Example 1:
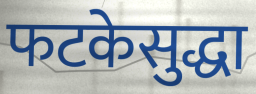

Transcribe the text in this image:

फटकेसुद्धा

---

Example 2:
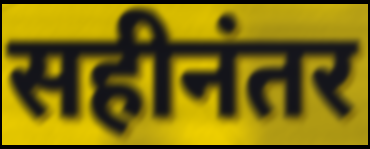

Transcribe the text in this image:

सहीनंतर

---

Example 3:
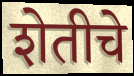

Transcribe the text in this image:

शेतीचे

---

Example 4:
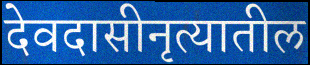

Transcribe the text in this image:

देवदासीनृत्यातील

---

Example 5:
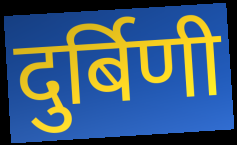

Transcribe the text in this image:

दुर्बिणी